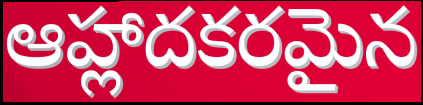
ఆహ్లాదకరమైన